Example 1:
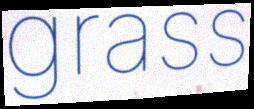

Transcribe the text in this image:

grass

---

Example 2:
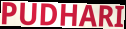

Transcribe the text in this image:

PUDHARI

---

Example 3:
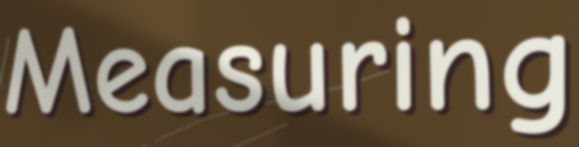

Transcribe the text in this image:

Measuring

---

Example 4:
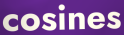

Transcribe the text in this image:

cosines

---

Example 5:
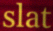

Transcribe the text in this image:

slat